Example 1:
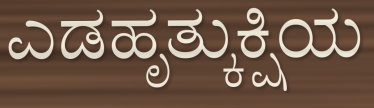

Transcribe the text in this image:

ಎಡಹೃತ್ಕುಕ್ಷಿಯ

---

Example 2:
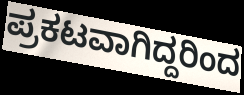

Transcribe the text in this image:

ಪ್ರಕಟವಾಗಿದ್ದರಿಂದ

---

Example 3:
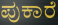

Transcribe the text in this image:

ಪುಕಾರೆ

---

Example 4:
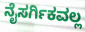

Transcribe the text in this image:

ನೈಸರ್ಗಿಕವಲ್ಲ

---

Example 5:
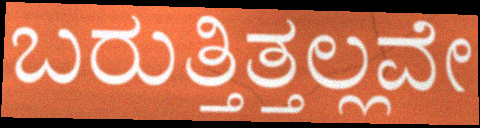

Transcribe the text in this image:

ಬರುತ್ತಿತ್ತಲ್ಲವೇ